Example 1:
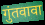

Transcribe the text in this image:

गुंतवावा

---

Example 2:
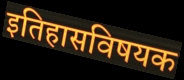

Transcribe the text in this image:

इतिहासविषयक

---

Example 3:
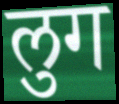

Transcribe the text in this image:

लुग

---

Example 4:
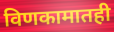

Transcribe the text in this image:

विणकामातही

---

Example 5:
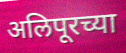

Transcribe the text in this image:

अलिपूरच्या